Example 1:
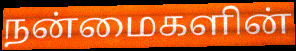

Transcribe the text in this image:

நன்மைகளின்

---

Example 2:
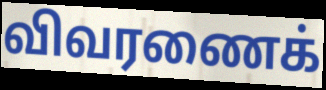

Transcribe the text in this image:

விவரணைக்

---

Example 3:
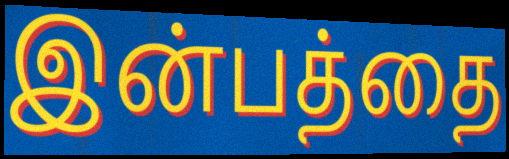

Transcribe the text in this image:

இன்பத்தை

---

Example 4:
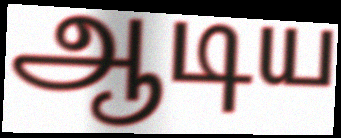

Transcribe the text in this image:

ஆடிய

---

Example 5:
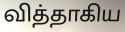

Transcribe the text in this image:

வித்தாகிய